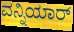
ವನ್ನಿಯಾರ್